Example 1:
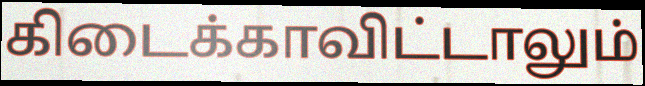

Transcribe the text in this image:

கிடைக்காவிட்டாலும்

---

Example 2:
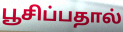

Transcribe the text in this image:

பூசிப்பதால்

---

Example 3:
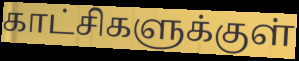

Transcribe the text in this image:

காட்சிகளுக்குள்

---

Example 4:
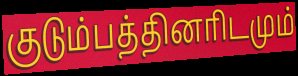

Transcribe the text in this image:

குடும்பத்தினரிடமும்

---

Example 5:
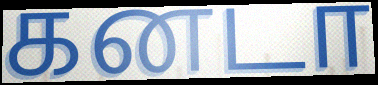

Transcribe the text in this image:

கனடா